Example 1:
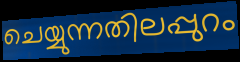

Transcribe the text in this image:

ചെയ്യുന്നതിലപ്പുറം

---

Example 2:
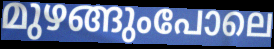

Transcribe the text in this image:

മുഴങ്ങുംപോലെ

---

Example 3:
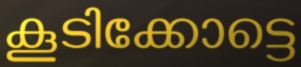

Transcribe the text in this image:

കൂടിക്കോട്ടെ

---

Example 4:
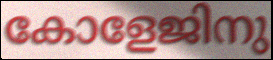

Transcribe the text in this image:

കോളേജിനു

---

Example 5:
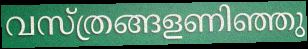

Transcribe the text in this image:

വസ്ത്രങ്ങളണിഞ്ഞു